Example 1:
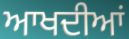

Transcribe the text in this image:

ਆਖਦੀਆਂ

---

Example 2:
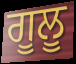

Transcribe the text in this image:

ਗੂਲੂ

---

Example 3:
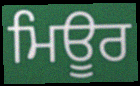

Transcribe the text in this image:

ਮਿਊਰ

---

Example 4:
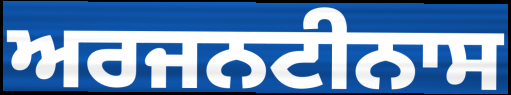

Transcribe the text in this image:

ਅਰਜਨਟੀਨਾਸ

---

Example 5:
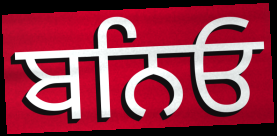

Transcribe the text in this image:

ਬਨਿਓ